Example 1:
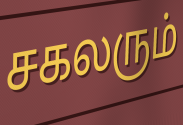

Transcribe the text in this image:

சகலரும்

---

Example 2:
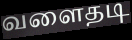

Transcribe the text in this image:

வளைதடி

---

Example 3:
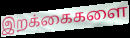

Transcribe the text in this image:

இறக்கைகளை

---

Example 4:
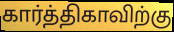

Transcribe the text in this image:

கார்த்திகாவிற்கு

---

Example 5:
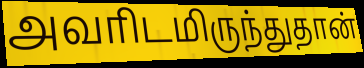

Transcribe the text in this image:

அவரிடமிருந்துதான்